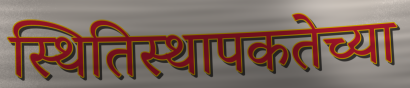
स्थितिस्थापकतेच्या